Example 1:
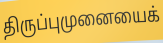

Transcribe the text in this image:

திருப்புமுனையைக்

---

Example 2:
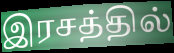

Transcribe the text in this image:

இரசத்தில்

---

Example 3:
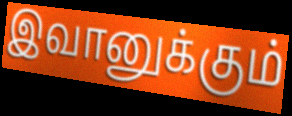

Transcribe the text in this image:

இவானுக்கும்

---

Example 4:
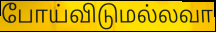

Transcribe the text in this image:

போய்விடுமல்லவா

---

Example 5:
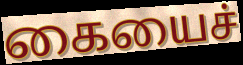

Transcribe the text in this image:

கையைச்